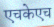
एचकेएच